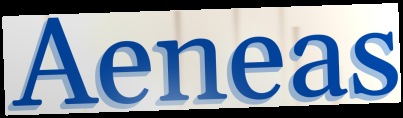
Aeneas